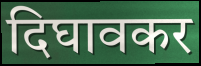
दिघावकर